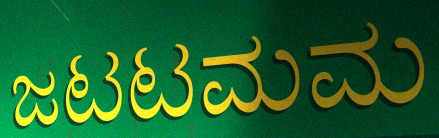
ಜಟಟಮಮ